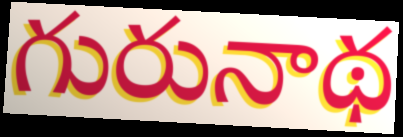
గురునాథ